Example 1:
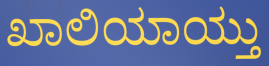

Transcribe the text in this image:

ಖಾಲಿಯಾಯ್ತು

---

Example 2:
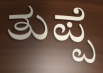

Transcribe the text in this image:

ತುಪ್ಪೆ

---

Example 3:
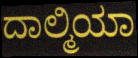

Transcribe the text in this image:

ದಾಲ್ಮಿಯಾ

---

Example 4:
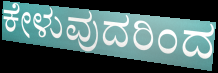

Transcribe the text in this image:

ಕೇಳುವುದರಿಂದ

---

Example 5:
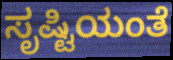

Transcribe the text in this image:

ಸೃಷ್ಟಿಯಂತೆ